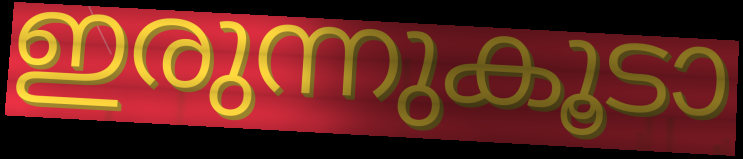
ഇരുന്നുകൂടാ